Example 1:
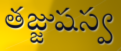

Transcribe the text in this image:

తజ్జుషస్వ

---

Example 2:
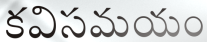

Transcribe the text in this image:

కవిసమయం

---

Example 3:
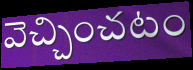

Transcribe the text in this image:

వెచ్చించటం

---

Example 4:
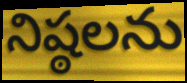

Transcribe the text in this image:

నిష్ఠలను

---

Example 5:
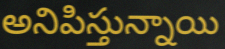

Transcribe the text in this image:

అనిపిస్తున్నాయి